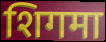
शिगमा